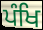
ਪੰਖਿ